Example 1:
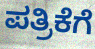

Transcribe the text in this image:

ಪತ್ರಿಕೆಗೆ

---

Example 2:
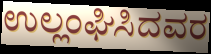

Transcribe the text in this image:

ಉಲ್ಲಂಘಿಸಿದವರ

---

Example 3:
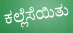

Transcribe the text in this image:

ಕಲ್ಲೆಸೆಯಿತು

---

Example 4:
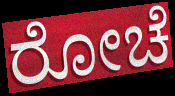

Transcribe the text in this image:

ರೋಚೆ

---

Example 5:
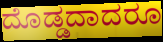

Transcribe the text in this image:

ದೊಡ್ಡದಾದರೂ